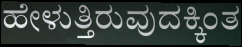
ಹೇಳುತ್ತಿರುವುದಕ್ಕಿಂತ